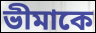
ভীমাকে